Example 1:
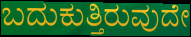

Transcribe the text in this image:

ಬದುಕುತ್ತಿರುವುದೇ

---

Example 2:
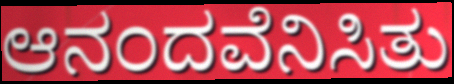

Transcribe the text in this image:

ಆನಂದವೆನಿಸಿತು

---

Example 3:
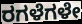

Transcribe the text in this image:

ರಗಳೆಗಳೇ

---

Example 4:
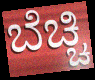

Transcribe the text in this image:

ಬೆಚ್ಚಿ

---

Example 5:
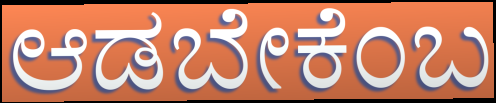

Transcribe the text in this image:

ಆಡಬೇಕೆಂಬ